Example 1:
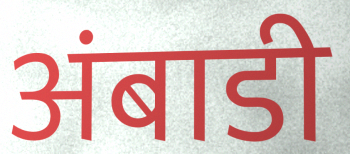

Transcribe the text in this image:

अंबाडी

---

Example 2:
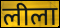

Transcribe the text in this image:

लीला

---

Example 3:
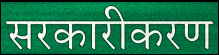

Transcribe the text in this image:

सरकारीकरण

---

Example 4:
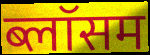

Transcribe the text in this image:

ब्लॉसम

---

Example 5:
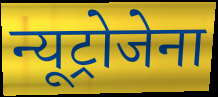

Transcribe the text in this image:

न्यूट्रोजेना